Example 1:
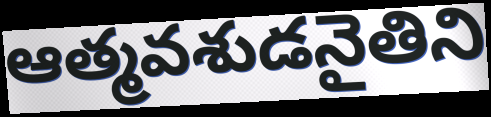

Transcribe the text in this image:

ఆత్మవశుడనైతిని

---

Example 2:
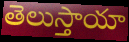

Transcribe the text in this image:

తెలుస్తాయా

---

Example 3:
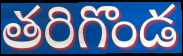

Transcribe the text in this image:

తరిగొండ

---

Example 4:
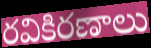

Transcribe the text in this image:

రవికిరణాలు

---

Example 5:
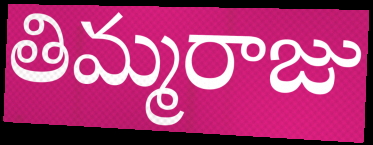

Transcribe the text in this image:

తిమ్మరాజు